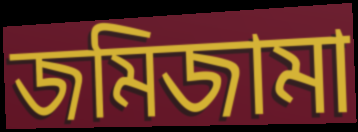
জমিজামা